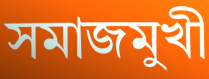
সমাজমুখী